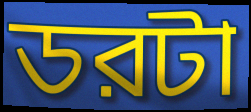
ডরটা